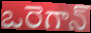
ఒరెగాన్